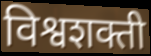
विश्वशक्ती